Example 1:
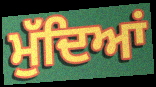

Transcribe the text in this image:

ਮੁੱਦਿਆਂ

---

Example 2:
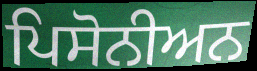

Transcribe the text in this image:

ਪਿਸੋਨੀਅਨ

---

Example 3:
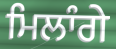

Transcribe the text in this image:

ਮਿਲਾੰਗੇ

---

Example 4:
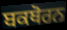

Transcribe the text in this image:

ਬਕਥੋਰਨ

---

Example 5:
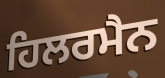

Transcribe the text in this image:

ਹਿਲਰਮੈਨ